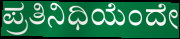
ಪ್ರತಿನಿಧಿಯೆಂದೇ